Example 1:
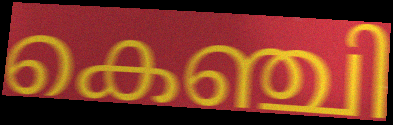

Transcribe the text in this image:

കെഞ്ചി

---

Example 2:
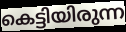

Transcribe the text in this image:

കെട്ടിയിരുന്ന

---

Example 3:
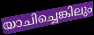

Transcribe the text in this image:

യാചിച്ചെങ്കിലും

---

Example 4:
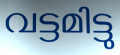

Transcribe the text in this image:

വട്ടമിട്ടു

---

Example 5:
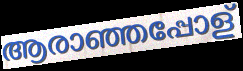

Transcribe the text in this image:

ആരാഞ്ഞപ്പോള്